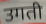
उगती